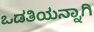
ಒಡತಿಯನ್ನಾಗಿ